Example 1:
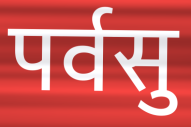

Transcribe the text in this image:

पर्वसु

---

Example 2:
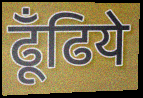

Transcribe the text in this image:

ढूँढिये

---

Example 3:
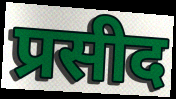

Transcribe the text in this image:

प्रसीद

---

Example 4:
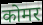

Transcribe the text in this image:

कोमर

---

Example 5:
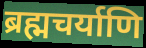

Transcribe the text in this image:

ब्रह्मचर्याणि